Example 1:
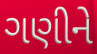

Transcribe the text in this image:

ગણીને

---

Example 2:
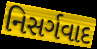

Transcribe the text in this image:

નિસર્ગવાદ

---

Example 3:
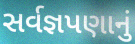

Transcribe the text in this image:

સર્વજ્ઞપણાનું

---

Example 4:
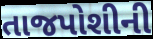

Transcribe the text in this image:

તાજપોશીની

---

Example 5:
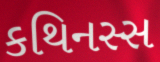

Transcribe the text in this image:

કથિનસ્સ